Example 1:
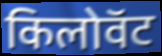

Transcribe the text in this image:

किलोवॅट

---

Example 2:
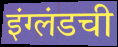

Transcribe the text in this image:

इंग्लंडची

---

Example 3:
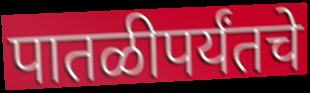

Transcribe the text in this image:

पातळीपर्यंतचे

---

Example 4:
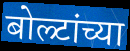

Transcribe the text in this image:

बोल्टांच्या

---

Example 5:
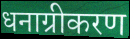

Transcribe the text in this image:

धनाग्रीकरण